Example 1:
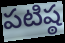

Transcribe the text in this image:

పటిష్ఠ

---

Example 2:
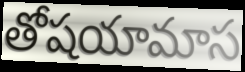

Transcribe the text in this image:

తోషయామాస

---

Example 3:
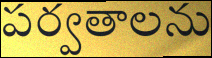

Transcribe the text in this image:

పర్వతాలను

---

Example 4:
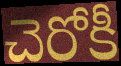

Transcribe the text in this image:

చెరోకీ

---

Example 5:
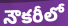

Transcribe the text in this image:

నౌకరీలో